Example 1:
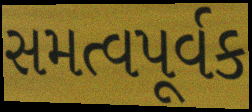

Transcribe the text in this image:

સમત્વપૂર્વક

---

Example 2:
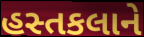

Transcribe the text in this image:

હસ્તકલાને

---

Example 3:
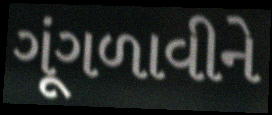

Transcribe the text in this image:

ગૂંગળાવીને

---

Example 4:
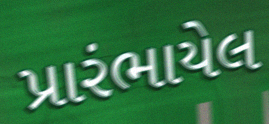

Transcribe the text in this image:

પ્રારંભાયેલ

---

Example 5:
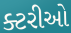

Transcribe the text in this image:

ક્ટરીઓ